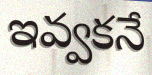
ఇవ్వకనే